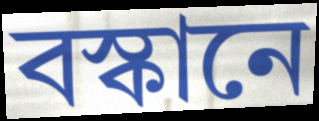
বস্কানে